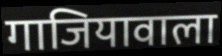
गाजियावाला